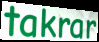
takrar